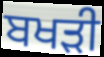
ਬਖੜੀ